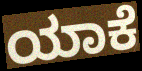
ಯಾಕೆ